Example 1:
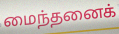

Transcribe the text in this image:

மைந்தனைக்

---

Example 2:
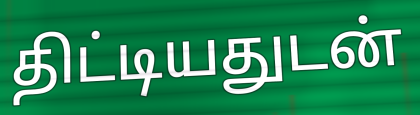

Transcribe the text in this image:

திட்டியதுடன்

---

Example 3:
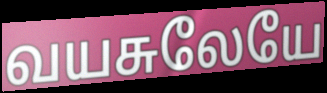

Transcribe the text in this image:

வயசுலேயே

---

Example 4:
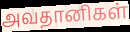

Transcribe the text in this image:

அவதானிகள்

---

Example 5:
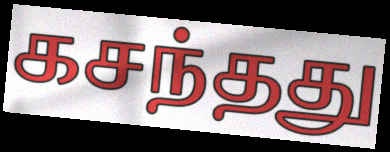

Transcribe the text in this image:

கசந்தது